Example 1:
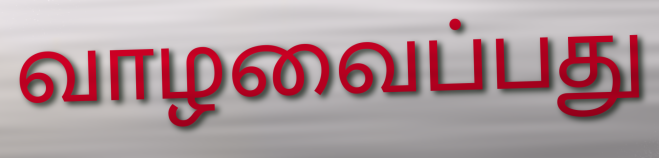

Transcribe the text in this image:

வாழவைப்பது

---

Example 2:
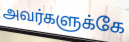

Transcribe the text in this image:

அவர்களுக்கே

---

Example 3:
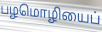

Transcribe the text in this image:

பழமொழியைப்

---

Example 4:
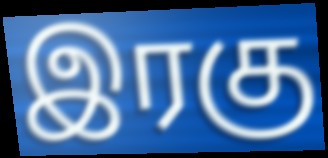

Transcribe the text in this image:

இரகு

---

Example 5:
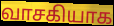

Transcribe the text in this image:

வாசகியாக